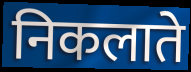
निकलाते